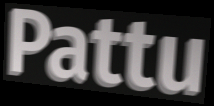
Pattu